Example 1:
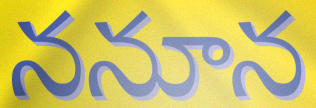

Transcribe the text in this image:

ననూన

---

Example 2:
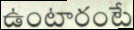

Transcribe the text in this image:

ఉంటారంటే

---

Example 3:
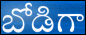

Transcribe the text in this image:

బోడిగా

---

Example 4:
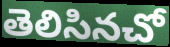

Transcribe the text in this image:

తెలిసినచో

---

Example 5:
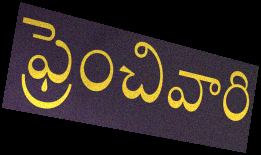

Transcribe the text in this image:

ఫ్రెంచివారి